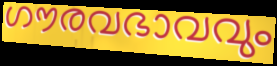
ഗൗരവഭാവവും